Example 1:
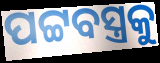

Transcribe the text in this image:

ପଟ୍ଟବସ୍ତ୍ରକୁ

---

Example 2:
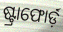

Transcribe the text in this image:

ଷ୍ଟ୍ରାଫୋର୍ଡ଼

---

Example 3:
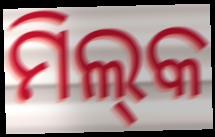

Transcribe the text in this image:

ମିଲ୍‌କ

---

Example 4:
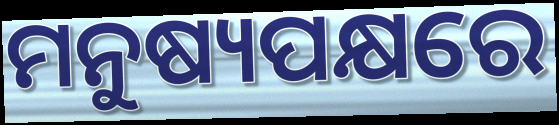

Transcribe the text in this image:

ମନୁଷ୍ୟପକ୍ଷରେ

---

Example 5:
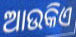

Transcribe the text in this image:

ଆଉକିଏ